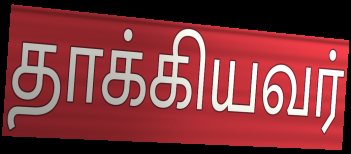
தாக்கியவர்